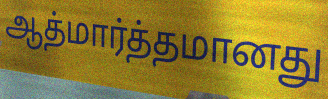
ஆத்மார்த்தமானது